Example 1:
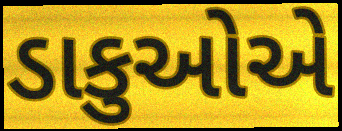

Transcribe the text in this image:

ડાકુઓએ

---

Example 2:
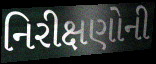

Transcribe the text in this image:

નિરીક્ષણોની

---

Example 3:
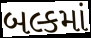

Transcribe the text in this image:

બલ્કમાં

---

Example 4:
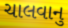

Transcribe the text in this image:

ચાલવાનુ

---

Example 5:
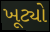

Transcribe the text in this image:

ખૂટ્યો